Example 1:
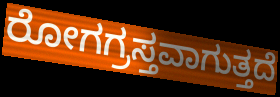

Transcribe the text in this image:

ರೋಗಗ್ರಸ್ತವಾಗುತ್ತದೆ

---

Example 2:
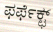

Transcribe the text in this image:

ಫರ್ಫೆಕ್ಟ್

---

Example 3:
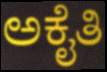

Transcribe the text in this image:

ಅಕೈತಿ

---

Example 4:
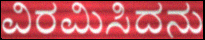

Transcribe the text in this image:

ವಿರಮಿಸಿದನು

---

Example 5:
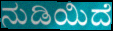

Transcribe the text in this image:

ನುಡಿಯಿದೆ